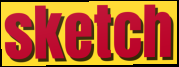
sketch